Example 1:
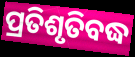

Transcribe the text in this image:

ପ୍ରତିଶୃତିବଦ୍ଧ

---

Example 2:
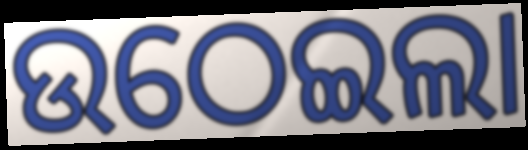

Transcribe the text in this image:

ଉଠେଇଲା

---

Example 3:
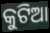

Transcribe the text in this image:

କୁଟିଆ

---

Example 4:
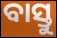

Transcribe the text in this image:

ବାସ୍ତୁ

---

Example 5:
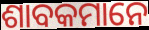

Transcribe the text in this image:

ଶାବକମାନେ